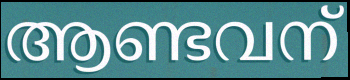
ആണ്ടവന്